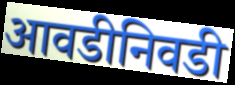
आवडीनिवडी